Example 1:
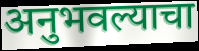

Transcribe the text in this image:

अनुभवल्याचा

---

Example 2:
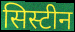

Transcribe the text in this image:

सिस्टीन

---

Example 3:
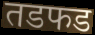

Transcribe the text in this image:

तडफड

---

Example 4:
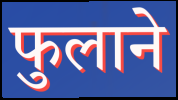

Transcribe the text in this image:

फुलाने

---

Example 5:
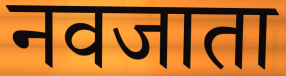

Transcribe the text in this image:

नवजाता